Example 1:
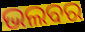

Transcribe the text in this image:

ଭଲବର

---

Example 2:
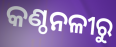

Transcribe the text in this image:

କଣ୍ଠନଳୀରୁ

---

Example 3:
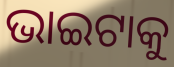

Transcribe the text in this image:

ଭାଇଟାକୁ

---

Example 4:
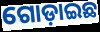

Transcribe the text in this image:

ଗୋଡ଼ାଇଛ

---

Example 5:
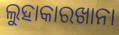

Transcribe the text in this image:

ଲୁହାକାରଖାନା